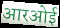
आरओई